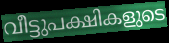
വീട്ടുപക്ഷികളുടെ